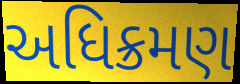
અધિક્રમણ